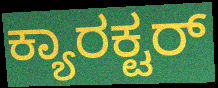
ಕ್ಯಾರಕ್ಟರ್